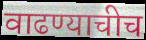
वाढण्याचीच